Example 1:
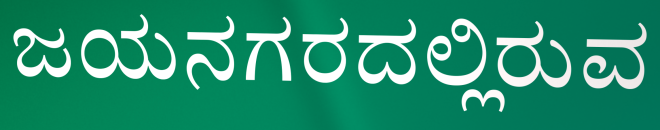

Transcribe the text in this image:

ಜಯನಗರದಲ್ಲಿರುವ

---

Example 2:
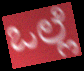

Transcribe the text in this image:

ಒಲ್ಲೆ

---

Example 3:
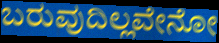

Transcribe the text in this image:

ಬರುವುದಿಲ್ಲವೇನೋ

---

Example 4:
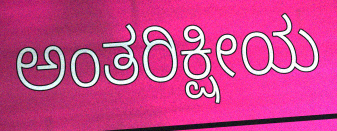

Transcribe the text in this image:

ಅಂತರಿಕ್ಷೀಯ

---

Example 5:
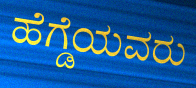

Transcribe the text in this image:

ಹೆಗ್ಡೆಯವರು